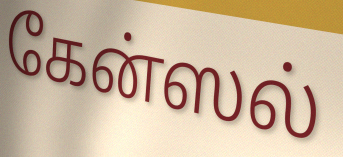
கேன்ஸல்